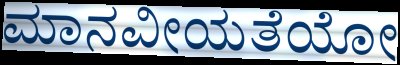
ಮಾನವೀಯತೆಯೋ